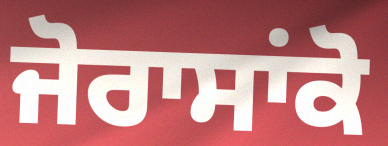
ਜੋਰਾਸਾਂਕੋ